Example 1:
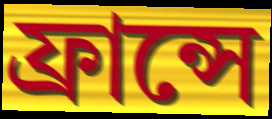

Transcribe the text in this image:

ফ্ৰান্সে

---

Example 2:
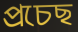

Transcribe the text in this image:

প্ৰচেছ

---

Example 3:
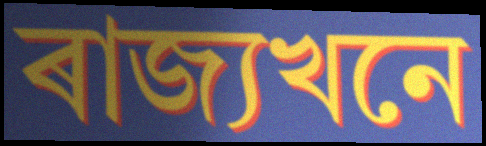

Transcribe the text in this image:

ৰাজ্যখনে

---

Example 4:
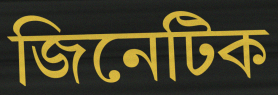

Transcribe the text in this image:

জিনেটিক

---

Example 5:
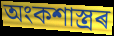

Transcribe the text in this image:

অংকশাস্ত্ৰৰ